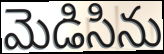
మెడిసిను